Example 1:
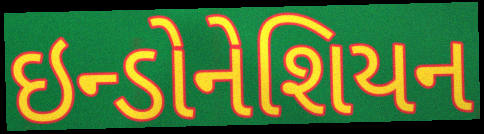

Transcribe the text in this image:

ઇન્ડોનેશિયન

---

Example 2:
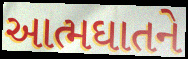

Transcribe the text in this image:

આત્મઘાતને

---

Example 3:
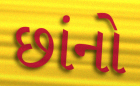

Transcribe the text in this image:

છાંનો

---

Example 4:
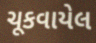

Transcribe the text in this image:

ચૂકવાયેલ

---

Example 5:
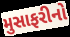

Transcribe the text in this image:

મુસાફરીનો